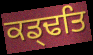
ਕਡ੍ਢਤਿ